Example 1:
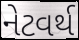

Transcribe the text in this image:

નેટવર્થ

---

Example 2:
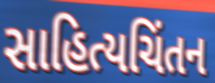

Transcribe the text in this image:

સાહિત્યચિંતન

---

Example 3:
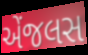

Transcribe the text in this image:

એંજલસ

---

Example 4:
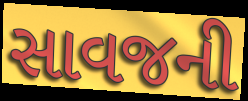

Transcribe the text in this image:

સાવજની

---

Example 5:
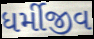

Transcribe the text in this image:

ધર્મીજીવ